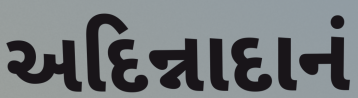
અદિન્નાદાનં